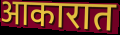
आकारात